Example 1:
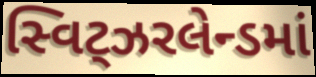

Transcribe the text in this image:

સ્વિટ્ઝરલેન્ડમાં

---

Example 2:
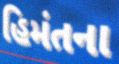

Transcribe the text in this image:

હિમંતના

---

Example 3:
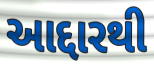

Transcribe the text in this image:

આદ્દારથી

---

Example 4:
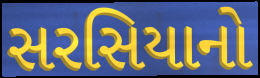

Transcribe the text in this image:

સરસિયાનો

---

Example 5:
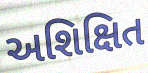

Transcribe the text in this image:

અશિક્ષિત